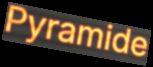
Pyramide